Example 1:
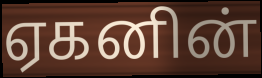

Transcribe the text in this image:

ஏகனின்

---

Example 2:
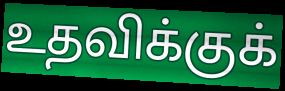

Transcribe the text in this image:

உதவிக்குக்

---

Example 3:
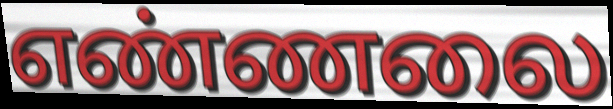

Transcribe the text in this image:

எண்ணலை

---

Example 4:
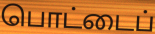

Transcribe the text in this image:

பொட்டைப்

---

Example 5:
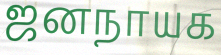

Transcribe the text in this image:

ஜனநாயக